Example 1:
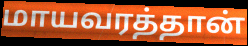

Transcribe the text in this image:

மாயவரத்தான்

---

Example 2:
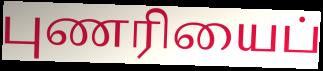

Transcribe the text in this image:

புணரியைப்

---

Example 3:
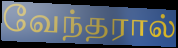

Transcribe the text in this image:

வேந்தரால்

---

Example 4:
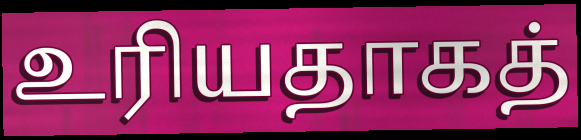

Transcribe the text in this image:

உரியதாகத்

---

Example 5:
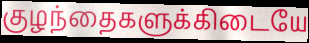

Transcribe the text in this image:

குழந்தைகளுக்கிடையே